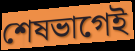
শেষভাগেই